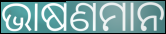
ଭାଷଣମାନ